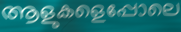
ആളുകളെപ്പോലെ